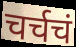
चर्चचं